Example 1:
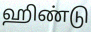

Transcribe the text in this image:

ஹிண்டு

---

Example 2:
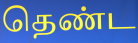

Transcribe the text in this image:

தெண்ட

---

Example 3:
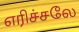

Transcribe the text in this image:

எரிச்சலே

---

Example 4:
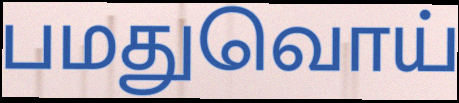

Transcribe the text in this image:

பமதுவொய்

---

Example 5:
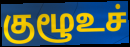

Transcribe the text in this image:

குழூஉச்